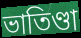
ভাতিণ্ডা